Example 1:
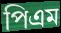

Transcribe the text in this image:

পিএম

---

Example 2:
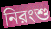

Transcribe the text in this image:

নিরংশু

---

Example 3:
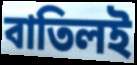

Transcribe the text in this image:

বাতিলই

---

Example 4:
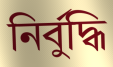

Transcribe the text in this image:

নির্বুদ্ধি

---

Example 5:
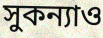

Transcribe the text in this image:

সুকন্যাও